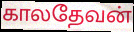
காலதேவன்